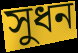
সুধন